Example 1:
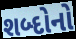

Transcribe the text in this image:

શબ્દોનો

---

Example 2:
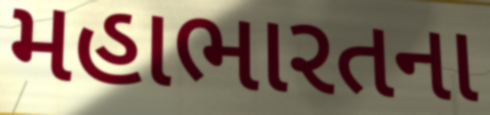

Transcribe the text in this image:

મહાભારતના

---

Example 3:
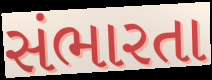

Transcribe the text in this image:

સંભારતા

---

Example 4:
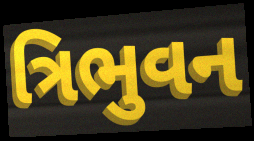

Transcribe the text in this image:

ત્રિભુવન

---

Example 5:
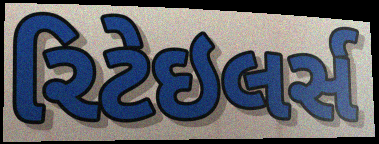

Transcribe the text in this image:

રિટેઇલર્સ